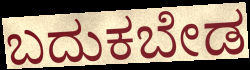
ಬದುಕಬೇಡ